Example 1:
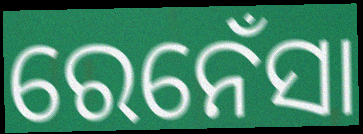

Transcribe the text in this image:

ରେନେଁସା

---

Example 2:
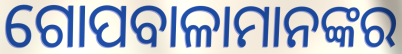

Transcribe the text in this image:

ଗୋପବାଳାମାନଙ୍କର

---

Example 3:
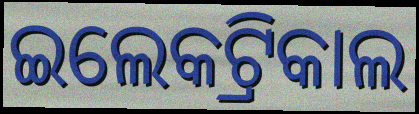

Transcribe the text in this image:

ଇଲେକଟ୍ରିକାଲ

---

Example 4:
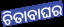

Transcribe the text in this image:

ଚିତାବାଘର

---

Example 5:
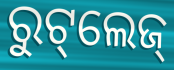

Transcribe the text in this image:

ରୁଟ୍‌ଲେଜ୍